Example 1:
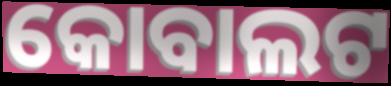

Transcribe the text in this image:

କୋବାଲଟ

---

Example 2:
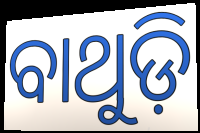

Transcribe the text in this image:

ବାଥୁଡ଼ି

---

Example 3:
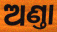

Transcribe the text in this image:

ଅଣ୍ତା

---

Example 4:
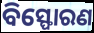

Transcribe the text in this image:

ବିସ୍ଫୋରଣ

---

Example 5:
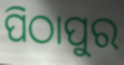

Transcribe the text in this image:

ପିଠାପୁର